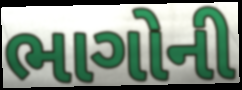
ભાગોની